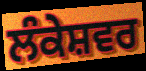
ਲੰਕੇਸ਼ਵਰ